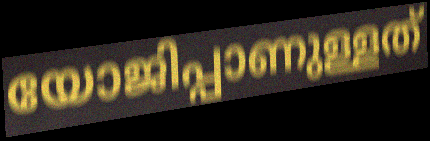
യോജിപ്പാണുള്ളത്